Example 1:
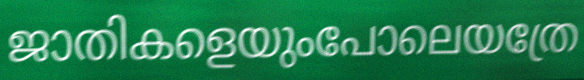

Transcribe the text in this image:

ജാതികളെയുംപോലെയത്രേ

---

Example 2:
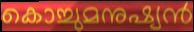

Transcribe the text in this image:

കൊച്ചുമനുഷ്യൻ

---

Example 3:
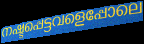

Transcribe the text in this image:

നഷ്ടപ്പെട്ടവളെപ്പോലെ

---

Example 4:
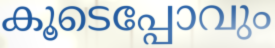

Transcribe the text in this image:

കൂടെപ്പോവും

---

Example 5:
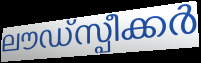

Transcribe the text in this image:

ലൗഡ്സ്പീക്കർ